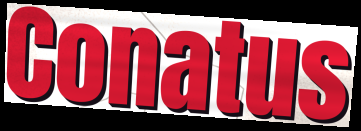
Conatus